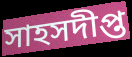
সাহসদীপ্ত